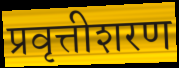
प्रवृत्तीशरण